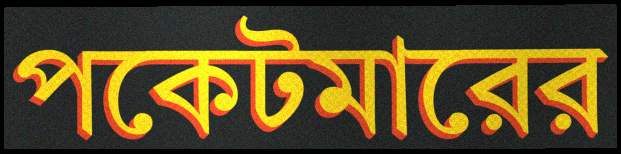
পকেটমারের